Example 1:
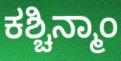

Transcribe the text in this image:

ಕಶ್ಚಿನ್ಮಾಂ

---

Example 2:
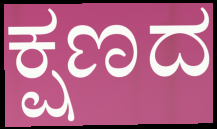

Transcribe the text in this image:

ಕ್ಷಣದ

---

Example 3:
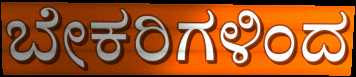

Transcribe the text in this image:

ಬೇಕರಿಗಳಿಂದ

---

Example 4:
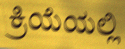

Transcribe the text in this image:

ಕ್ರಿಯೆಯಲ್ಲಿ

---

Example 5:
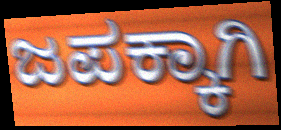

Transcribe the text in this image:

ಜಪಕ್ಕಾಗಿ